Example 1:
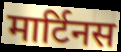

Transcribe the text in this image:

मार्टिनस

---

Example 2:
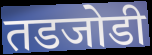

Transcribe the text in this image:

तडजोडी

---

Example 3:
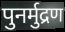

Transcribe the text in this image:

पुनर्मुद्रण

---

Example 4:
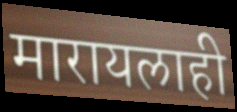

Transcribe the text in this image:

मारायलाही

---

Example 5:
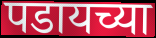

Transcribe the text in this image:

पडायच्या